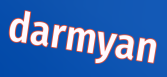
darmyan